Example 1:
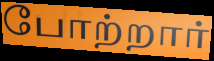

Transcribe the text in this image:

போற்றார்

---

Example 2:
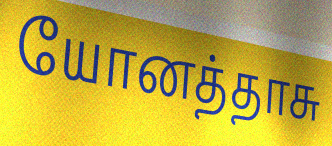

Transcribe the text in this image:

யோனத்தாசு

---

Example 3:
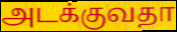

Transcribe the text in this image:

அடக்குவதா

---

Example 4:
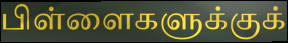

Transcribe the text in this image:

பிள்ளைகளுக்குக்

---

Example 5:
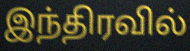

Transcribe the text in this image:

இந்திரவில்